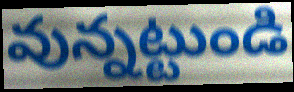
వున్నట్టుండి